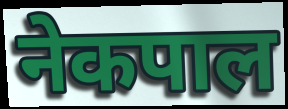
नेकपाल